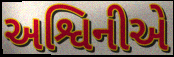
અશ્વિનીએ